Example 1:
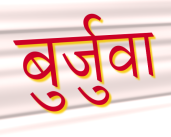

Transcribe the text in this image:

बुर्जुवा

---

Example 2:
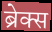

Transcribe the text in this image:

ब्रेक्स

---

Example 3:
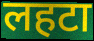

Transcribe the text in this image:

लहटा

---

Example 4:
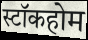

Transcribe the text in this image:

स्टॉकहोम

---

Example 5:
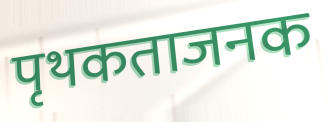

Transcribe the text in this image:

पृथकताजनक